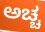
ಅಚ್ಚ